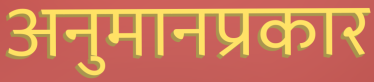
अनुमानप्रकार